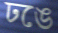
ঢঙে